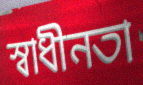
স্বাধীনতা